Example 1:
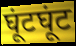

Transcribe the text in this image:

घूंटघूंट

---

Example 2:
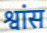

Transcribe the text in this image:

श्वांस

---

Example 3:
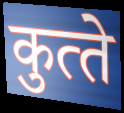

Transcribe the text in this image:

कुत्‍ते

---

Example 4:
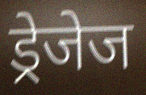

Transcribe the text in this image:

ड्रेजेज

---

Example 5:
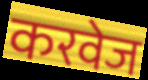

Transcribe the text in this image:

करवेज